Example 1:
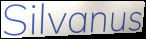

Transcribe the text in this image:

Silvanus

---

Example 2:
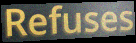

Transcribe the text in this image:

Refuses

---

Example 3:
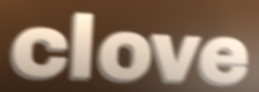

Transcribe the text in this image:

clove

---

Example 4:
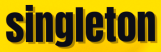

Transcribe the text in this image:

singleton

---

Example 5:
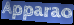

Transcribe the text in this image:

Apparao